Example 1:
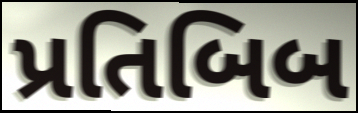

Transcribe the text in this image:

પ્રતિબિબ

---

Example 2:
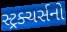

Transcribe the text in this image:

સ્ટ્રક્ચર્સનો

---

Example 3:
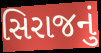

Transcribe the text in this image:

સિરાજનું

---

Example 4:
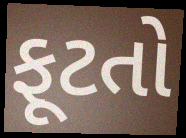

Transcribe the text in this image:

ફૂટતો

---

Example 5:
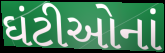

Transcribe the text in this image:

ઘંટીઓનાં